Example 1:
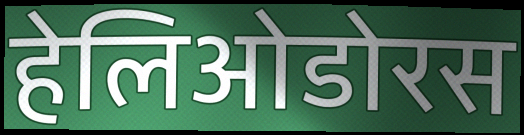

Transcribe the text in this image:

हेलिओडोरस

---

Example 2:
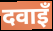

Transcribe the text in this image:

दवाइँ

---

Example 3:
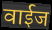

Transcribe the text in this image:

वाईज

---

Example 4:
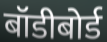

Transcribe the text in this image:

बॉडीबोर्ड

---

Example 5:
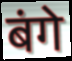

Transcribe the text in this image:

बंगे